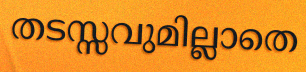
തടസ്സവുമില്ലാതെ